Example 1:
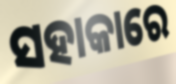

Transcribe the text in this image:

ସହାକାରେ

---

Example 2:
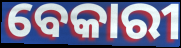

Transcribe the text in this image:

ବେକାରୀ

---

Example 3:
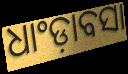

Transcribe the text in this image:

ଧାଂଡ଼ାବସା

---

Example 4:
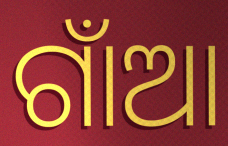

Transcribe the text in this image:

ଗାଁଆ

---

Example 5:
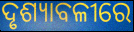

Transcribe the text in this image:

ଦୃଶ୍ୟାବଳୀରେ